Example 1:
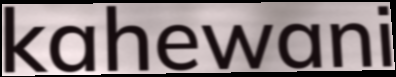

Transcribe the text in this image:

kahewani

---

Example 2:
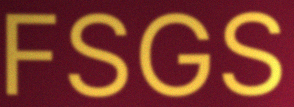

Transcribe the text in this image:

FSGS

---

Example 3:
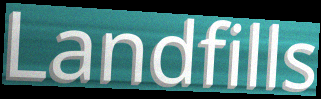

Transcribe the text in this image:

Landfills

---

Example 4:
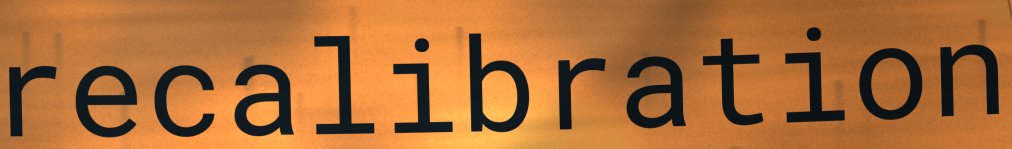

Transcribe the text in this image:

recalibration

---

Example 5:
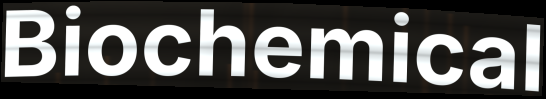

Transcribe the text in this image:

Biochemical